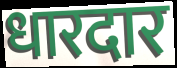
धारदार